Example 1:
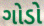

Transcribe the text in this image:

ગોડો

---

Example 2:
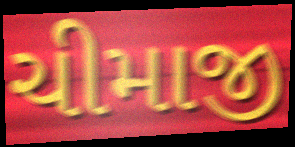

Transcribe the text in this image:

ચીમાજી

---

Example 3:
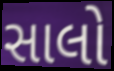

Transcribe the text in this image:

સાલો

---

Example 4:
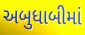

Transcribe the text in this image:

અબુધાબીમાં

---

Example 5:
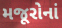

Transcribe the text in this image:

મજૂરોનાં